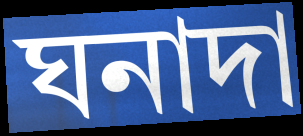
ঘনাদা